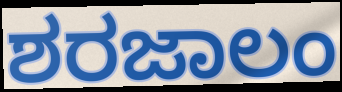
ಶರಜಾಲಂ